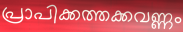
പ്രാപിക്കത്തക്കവണ്ണം